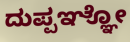
ದುಪ್ಪಞ್ಞೋ